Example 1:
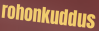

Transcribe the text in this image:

rohonkuddus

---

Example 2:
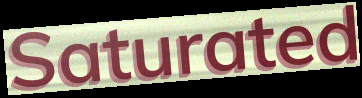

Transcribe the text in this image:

Saturated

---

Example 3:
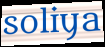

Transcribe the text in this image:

soliya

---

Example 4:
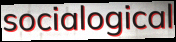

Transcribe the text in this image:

socialogical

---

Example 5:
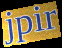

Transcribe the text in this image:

jpir